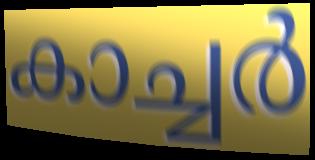
കാച്ചർ